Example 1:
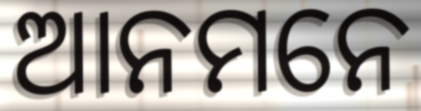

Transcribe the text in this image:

ଆନମନେ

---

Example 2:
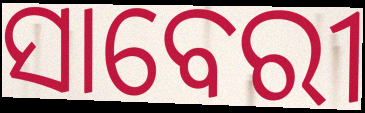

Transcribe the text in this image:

ସାବେରୀ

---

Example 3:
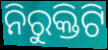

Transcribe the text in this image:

ନିରୁକ୍ତିଟି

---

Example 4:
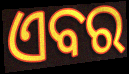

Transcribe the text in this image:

ଏବର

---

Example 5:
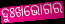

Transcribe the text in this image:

ଦୁଃଖଭୋଗର